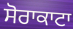
ਸੋਰਾਕਾਟਾ